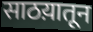
साठय़ातून